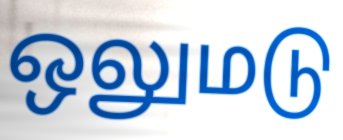
ஒலுமடு